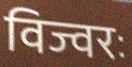
विज्वरः